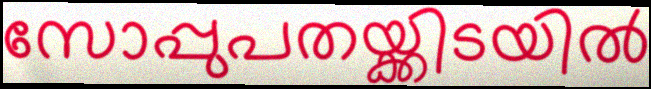
സോപ്പുപതയ്ക്കിടയിൽ